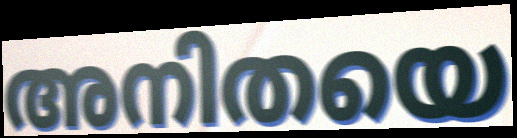
അനിതയെ